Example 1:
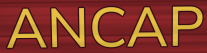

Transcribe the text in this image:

ANCAP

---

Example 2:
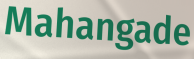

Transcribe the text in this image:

Mahangade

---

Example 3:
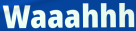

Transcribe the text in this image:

Waaahhh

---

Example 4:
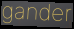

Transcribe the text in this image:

gander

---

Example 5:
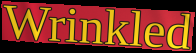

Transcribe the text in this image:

Wrinkled